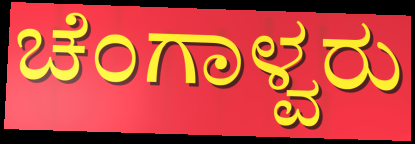
ಚೆಂಗಾಳ್ವರು